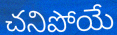
చనిపోయే